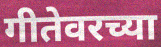
गीतेवरच्या